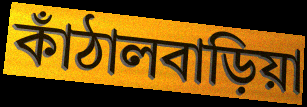
কাঁঠালবাড়িয়া